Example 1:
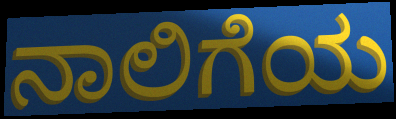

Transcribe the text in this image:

ನಾಲಿಗೆಯ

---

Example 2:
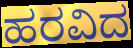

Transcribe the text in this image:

ಹರವಿದ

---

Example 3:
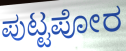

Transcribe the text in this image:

ಪುಟ್ಟಪೋರ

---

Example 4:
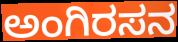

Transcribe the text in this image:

ಅಂಗಿರಸನ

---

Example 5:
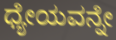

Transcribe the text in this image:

ಧ್ಯೇಯವನ್ನೇ